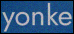
yonke